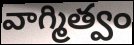
వాగ్మిత్వం